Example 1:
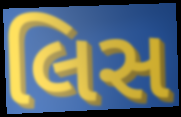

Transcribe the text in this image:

લિસ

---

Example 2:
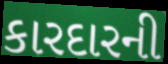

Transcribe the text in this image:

કારદારની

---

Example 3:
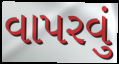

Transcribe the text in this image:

વાપરવું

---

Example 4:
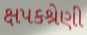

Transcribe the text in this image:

ક્ષપકશ્રેણી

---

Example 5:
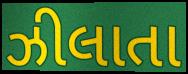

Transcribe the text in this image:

ઝીલાતા